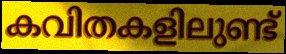
കവിതകളിലുണ്ട്